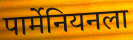
पार्मेनियनला